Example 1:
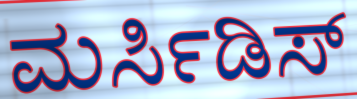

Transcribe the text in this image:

ಮರ್ಸಿಡಿಸ್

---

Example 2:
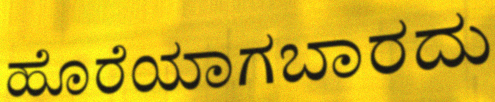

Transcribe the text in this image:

ಹೊರೆಯಾಗಬಾರದು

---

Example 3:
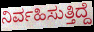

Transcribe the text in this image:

ನಿರ್ವಹಿಸುತ್ತಿದ್ದೆ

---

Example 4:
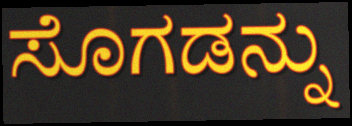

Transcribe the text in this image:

ಸೊಗಡನ್ನು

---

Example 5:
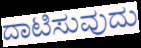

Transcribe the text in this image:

ದಾಟಿಸುವುದು